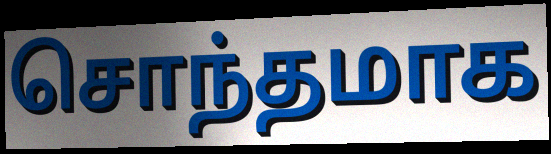
சொந்தமாக